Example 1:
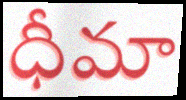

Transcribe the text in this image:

ధీమా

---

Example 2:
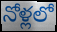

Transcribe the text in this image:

నోళ్లలో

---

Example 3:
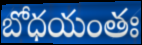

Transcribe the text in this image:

బోధయంతః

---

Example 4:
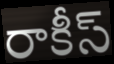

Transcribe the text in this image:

రాకీస్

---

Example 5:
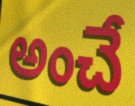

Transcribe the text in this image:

అంచే